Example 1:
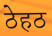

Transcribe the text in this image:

ठेहठ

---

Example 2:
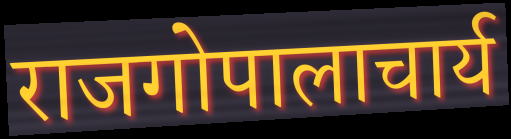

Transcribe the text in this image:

राजगोपालाचार्य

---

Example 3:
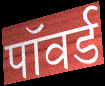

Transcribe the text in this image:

पॉवर्ड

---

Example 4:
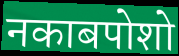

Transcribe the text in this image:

नकाबपोशो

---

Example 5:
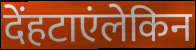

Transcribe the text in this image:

देंहटाएंलेकिन